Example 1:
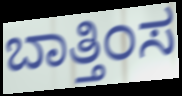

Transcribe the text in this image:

ಬಾತ್ತಿಂಸ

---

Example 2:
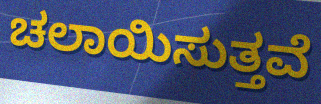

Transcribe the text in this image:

ಚಲಾಯಿಸುತ್ತವೆ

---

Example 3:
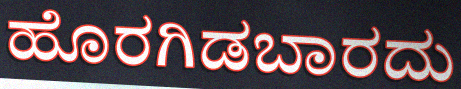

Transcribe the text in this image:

ಹೊರಗಿಡಬಾರದು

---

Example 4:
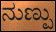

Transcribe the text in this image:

ನುಣ್ಪು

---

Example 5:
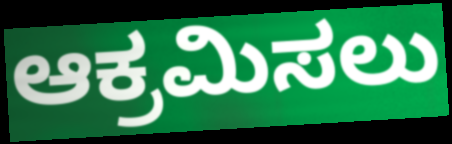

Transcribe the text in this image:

ಆಕ್ರಮಿಸಲು